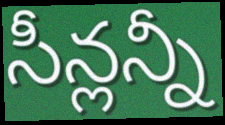
సీన్లన్నీ